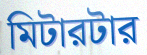
মিটারটার